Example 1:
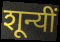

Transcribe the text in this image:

शून्यीं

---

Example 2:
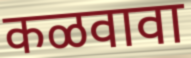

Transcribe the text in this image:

कळवावा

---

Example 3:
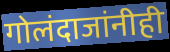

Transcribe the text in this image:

गोलंदाजांनीही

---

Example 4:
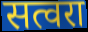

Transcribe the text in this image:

सत्वरा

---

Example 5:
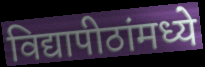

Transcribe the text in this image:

विद्यापीठांमध्ये